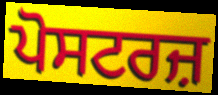
ਪੋਸਟਰਜ਼